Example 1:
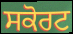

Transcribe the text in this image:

ਸਕੋਰਟ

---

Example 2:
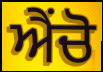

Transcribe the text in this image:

ਐਂਚੋ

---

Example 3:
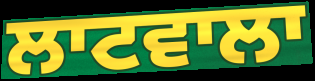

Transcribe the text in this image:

ਲਾਟਵਾਲਾ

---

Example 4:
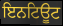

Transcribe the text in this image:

ਇਨਟਿਊਟ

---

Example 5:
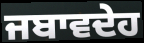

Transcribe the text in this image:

ਜਬਾਵਦੇਹ